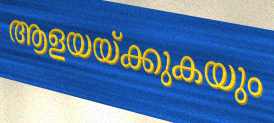
ആളയയ്ക്കുകയും